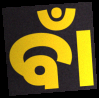
ବାଁ